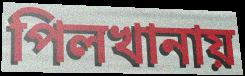
পিলখানায়